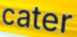
cater